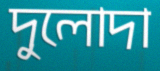
দুলোদা